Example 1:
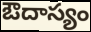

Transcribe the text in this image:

ఔదాస్యం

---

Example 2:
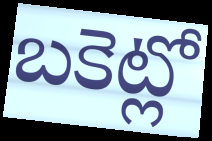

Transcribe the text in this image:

బకెట్లో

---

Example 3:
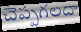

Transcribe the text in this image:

చెప్పగలదా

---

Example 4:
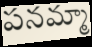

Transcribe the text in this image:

పనమ్మా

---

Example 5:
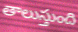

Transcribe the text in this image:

తాలుస్తుంది